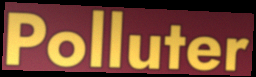
Polluter